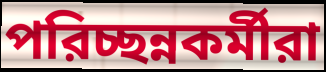
পরিচ্ছন্নকর্মীরা